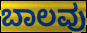
ಬಾಲವು